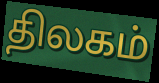
திலகம்